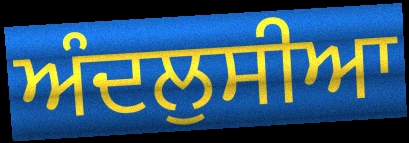
ਅੰਦਲੁਸੀਆ